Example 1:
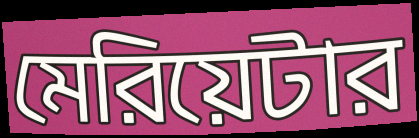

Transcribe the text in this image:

মেরিয়েটার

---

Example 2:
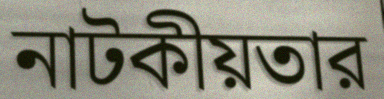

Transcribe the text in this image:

নাটকীয়তার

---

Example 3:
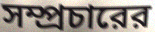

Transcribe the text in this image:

সম্প্রচারের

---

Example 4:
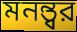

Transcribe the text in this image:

মনন্ত্বর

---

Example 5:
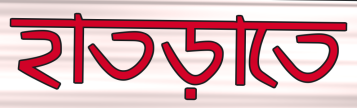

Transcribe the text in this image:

হাতড়াতে